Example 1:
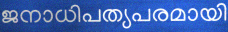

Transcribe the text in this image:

ജനാധിപത്യപരമായി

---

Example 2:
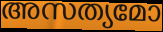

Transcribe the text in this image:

അസത്യമോ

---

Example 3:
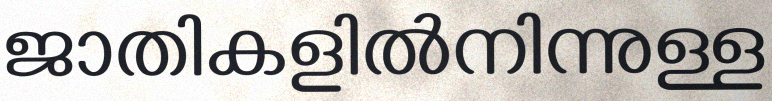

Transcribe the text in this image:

ജാതികളിൽനിന്നുള്ള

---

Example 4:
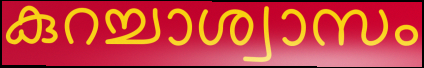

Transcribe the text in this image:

കുറച്ചാശ്വാസം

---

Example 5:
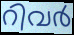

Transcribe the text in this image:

റിവർ